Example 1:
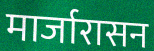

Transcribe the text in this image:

मार्जारासन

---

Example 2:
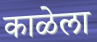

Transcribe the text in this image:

काळेला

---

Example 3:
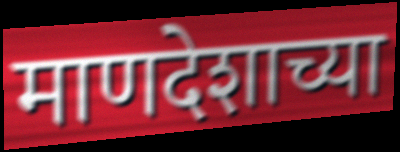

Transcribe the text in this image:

माणदेशाच्या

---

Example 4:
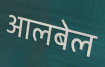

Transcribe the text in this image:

आलबेल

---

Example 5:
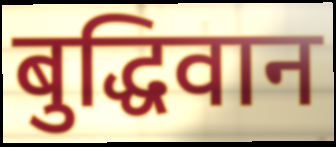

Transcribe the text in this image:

बुद्धिवान